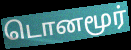
டொனமூர்